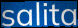
salita